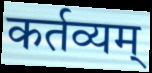
कर्तव्यम्